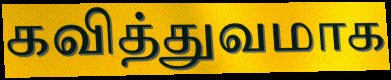
கவித்துவமாக